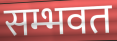
सम्भवत